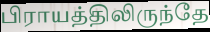
பிராயத்திலிருந்தே